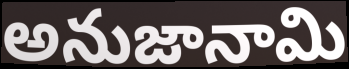
అనుజానామి